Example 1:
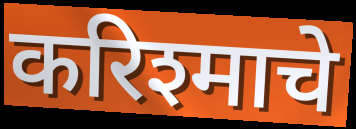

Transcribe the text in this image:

करिश्माचे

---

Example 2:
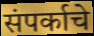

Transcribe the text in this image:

संपर्काचे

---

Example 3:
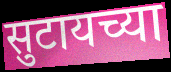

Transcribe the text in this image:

सुटायच्या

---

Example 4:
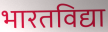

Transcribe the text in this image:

भारतविद्या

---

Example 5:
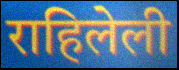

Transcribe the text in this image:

राहिलेली